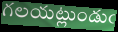
గలయట్లుండుఁ